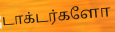
டாக்டர்களோ